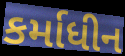
કર્માધીન